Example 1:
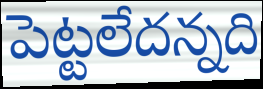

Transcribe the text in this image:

పెట్టలేదన్నది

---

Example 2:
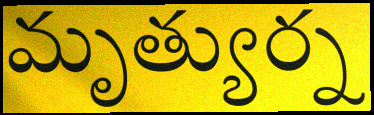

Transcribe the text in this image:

మృత్యుర్న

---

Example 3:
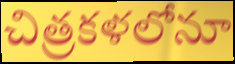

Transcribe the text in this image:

చిత్రకళలోనూ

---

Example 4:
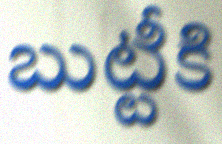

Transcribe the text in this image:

బుట్టీకి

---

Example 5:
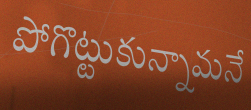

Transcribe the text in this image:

పోగొట్టుకున్నామనే